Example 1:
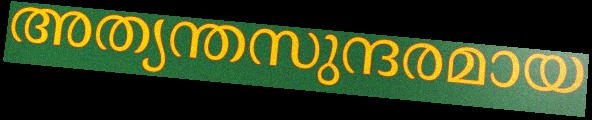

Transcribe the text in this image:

അത്യന്തസുന്ദരമായ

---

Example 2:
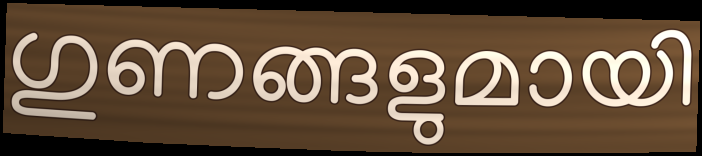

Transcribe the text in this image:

ഗുണങ്ങളുമായി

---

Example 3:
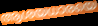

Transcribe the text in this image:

ആശയധാരയെ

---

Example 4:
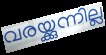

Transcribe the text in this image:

വരയ്ക്കുന്നില്ല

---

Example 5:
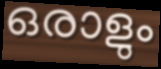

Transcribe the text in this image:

ഒരാളും